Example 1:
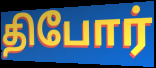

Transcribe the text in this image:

திபோர்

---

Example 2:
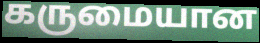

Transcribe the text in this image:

கருமையான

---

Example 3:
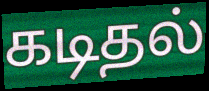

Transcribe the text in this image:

கடிதல்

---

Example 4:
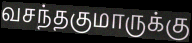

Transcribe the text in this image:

வசந்தகுமாருக்கு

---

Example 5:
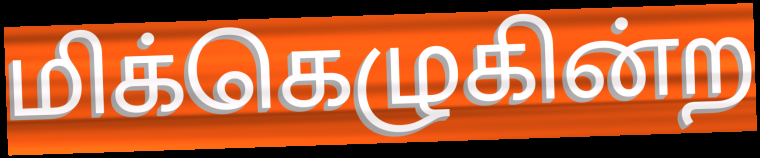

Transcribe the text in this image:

மிக்கெழுகின்ற